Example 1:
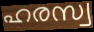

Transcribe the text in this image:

ഹരസ്വ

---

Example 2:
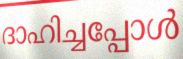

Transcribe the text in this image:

ദാഹിച്ചപ്പോൾ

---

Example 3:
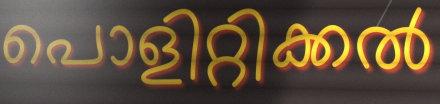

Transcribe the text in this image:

പൊളിറ്റിക്കൽ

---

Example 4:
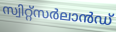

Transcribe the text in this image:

സ്വിറ്റ്സർലാൻഡ്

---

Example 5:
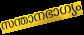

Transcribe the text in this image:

സന്താനഭാഗ്യം